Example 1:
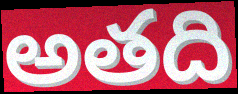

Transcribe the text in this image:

అతది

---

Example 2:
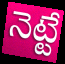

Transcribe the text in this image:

నెట్టే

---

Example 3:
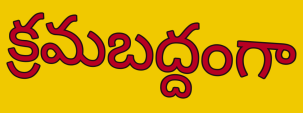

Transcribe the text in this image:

క్రమబద్దంగా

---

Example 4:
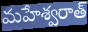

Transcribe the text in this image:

మహేశ్వరాత్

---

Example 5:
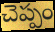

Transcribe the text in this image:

చెప్పం